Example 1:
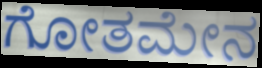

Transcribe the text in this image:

ಗೋತಮೇನ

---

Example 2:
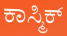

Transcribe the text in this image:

ಕಾಸ್ಮಿಕ್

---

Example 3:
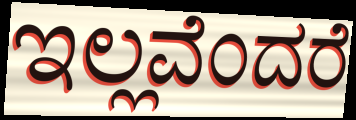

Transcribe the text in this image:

ಇಲ್ಲವೆಂದರೆ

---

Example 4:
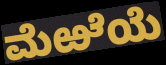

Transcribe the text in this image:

ಮೆಱೆಯೆ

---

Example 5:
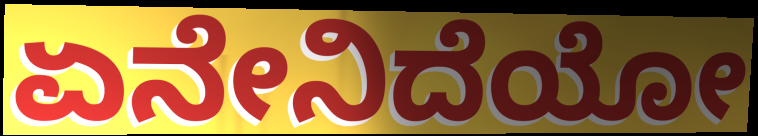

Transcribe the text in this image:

ಏನೇನಿದೆಯೋ